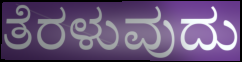
ತೆರಳುವುದು